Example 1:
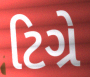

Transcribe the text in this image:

ટિગ્રે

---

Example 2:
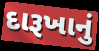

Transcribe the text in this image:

દારૂખાનું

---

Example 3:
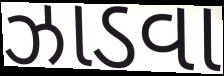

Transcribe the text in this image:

ઝાડવા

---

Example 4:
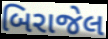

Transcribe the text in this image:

બિરાજેલ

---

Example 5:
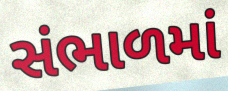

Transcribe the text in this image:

સંભાળમાં